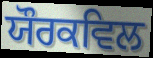
ਯੌਰਕਵਿਲ